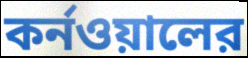
কর্নওয়ালের